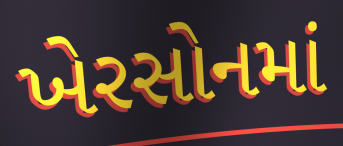
ખેરસોનમાં